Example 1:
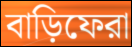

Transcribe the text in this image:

বাড়িফেরা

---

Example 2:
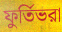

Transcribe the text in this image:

ফুর্তিভরা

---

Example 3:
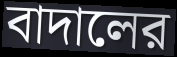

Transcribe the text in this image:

বাদালের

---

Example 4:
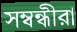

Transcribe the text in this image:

সম্বন্ধীরা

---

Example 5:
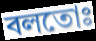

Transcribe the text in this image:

বলতোঃ